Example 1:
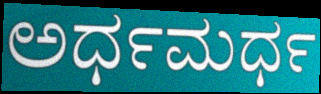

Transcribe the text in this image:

ಅರ್ಧಮರ್ಧ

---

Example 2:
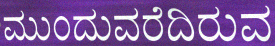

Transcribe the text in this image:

ಮುಂದುವರೆದಿರುವ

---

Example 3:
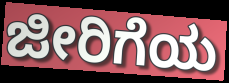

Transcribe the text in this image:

ಜೀರಿಗೆಯ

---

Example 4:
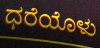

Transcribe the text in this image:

ಧರೆಯೊಳು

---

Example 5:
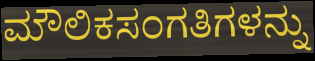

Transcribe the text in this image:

ಮೌಲಿಕಸಂಗತಿಗಳನ್ನು